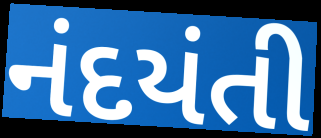
નંદયંતી